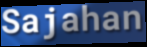
Sajahan